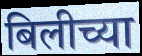
बिलीच्या